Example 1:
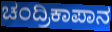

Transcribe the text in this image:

ಚಂದ್ರಿಕಾಪಾನ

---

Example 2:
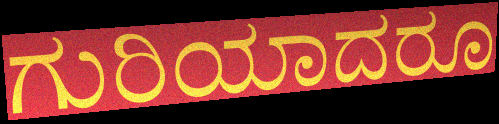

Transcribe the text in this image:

ಗುರಿಯಾದರೂ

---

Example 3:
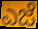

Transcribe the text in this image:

ಎಜೆ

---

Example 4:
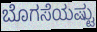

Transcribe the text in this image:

ಬೊಗಸೆಯಷ್ಟು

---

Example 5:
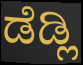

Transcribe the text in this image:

ಡೆಡ್ಲಿ